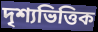
দৃশ্যভিত্তিক